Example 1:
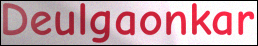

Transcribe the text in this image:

Deulgaonkar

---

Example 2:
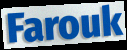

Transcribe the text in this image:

Farouk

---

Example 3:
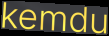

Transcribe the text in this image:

kemdu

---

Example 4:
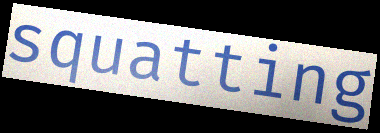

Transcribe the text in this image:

squatting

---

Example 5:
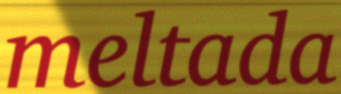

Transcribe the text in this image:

meltada